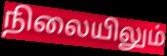
நிலையிலும்